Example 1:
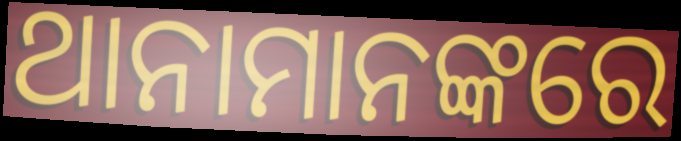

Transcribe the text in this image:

ଥାନାମାନଙ୍କରେ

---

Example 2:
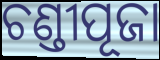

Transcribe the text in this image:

ଚଣ୍ଡୀପୂଜା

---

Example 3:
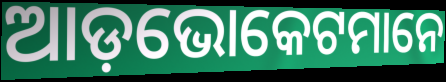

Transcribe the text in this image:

ଆଡ଼ଭୋକେଟମାନେ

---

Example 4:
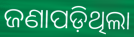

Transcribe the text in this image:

ଜଣାପଡ଼ିଥିଲା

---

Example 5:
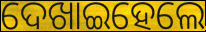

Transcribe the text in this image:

ଦେଖାଇହେଲେ